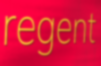
regent